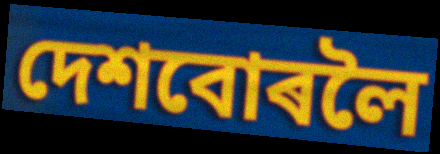
দেশবোৰলৈ